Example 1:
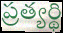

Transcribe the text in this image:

ప్రత్యర్థి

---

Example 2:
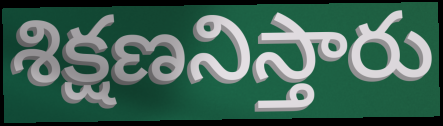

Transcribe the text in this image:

శిక్షణనిస్తారు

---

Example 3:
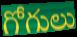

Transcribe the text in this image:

గోగులు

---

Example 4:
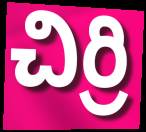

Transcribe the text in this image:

చిర్రి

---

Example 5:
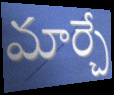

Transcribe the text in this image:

మార్చే